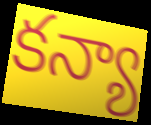
కన్యా